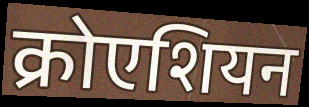
क्रोएशियन